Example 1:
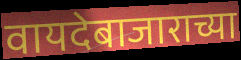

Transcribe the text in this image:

वायदेबाजाराच्या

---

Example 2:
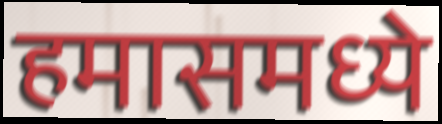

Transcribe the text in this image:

हमासमध्ये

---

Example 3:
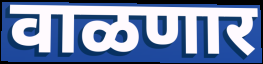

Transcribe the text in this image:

वाळणार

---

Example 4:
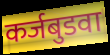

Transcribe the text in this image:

कर्जबुडवा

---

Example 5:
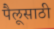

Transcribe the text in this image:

पैलूसाठी